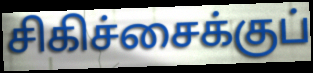
சிகிச்சைக்குப்